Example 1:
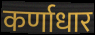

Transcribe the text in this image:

कर्णाधार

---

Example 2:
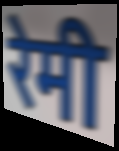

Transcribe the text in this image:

रेमी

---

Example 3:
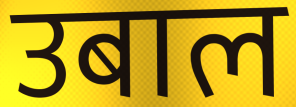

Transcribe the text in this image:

उबाल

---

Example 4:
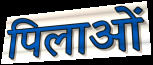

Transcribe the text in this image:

पिलाओं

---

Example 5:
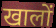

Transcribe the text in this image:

खालों